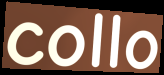
collo